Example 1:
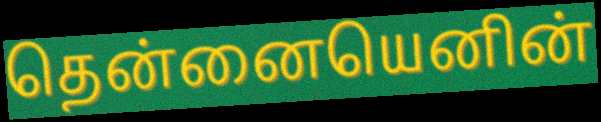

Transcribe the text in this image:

தென்னையெனின்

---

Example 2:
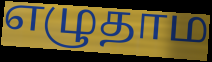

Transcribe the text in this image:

எழுதாம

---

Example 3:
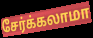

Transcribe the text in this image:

சேர்க்கலாமா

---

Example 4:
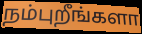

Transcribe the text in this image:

நம்புறீங்களா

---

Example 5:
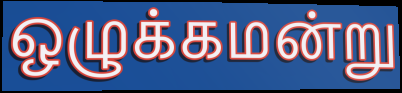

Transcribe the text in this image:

ஒழுக்கமன்று